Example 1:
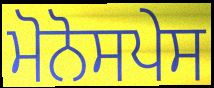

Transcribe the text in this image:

ਮੋਨੋਸਪੇਸ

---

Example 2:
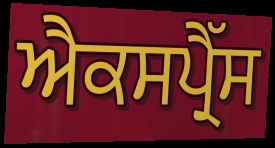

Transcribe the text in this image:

ਐਕਸਪ੍ਰੈੱਸ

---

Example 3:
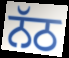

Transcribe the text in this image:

ਨੱਠ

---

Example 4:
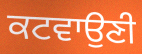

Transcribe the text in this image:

ਕਟਵਾਉਣੀ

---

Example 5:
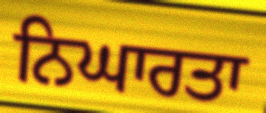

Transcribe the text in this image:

ਨਿਘਾਰਤਾ